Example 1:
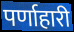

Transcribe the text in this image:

पर्णाहारी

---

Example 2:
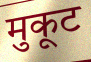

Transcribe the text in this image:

मुकूट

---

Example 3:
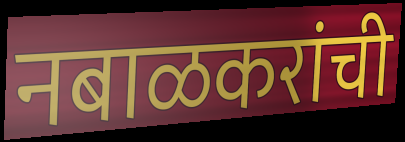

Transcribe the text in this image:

नबाळकरांची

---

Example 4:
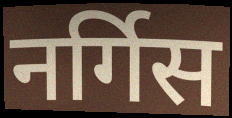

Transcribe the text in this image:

नर्गिस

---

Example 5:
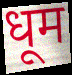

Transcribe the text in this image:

धूम